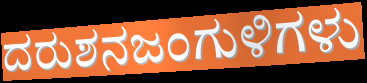
ದರುಶನಜಂಗುಳಿಗಳು